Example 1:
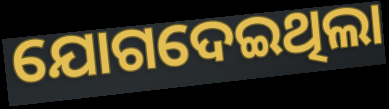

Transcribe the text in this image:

ଯୋଗଦେଇଥିଲା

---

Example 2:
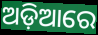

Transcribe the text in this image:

ଅଡ଼ିଆରେ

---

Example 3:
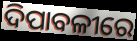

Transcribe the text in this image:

ଦିପାବଳୀରେ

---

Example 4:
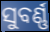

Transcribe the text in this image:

ସୁବର୍ଣ୍ଣ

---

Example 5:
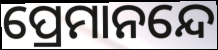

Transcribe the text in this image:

ପ୍ରେମାନନ୍ଦେ